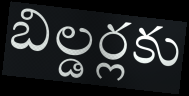
బిల్డర్లకు